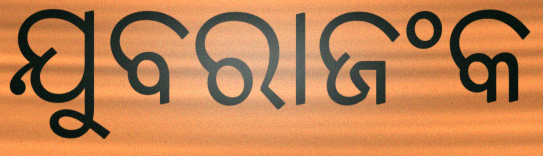
ଯୁବରାଜଂକ